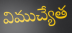
విముచ్యేత